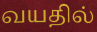
வயதில்